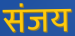
संजय